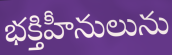
భక్తిహీనులును